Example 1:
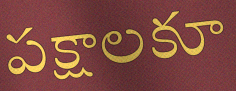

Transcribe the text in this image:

పక్షాలకూ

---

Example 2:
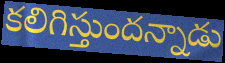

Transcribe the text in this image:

కలిగిస్తుందన్నాడు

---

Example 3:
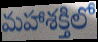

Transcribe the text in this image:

మహాశక్తిలో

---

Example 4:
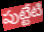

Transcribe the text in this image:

పుట్టేటి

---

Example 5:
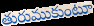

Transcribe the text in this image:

తురుముకుంటూ